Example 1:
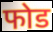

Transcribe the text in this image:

फोड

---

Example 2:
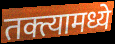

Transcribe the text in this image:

तक्‍त्यामध्ये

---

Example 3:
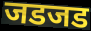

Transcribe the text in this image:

जडजड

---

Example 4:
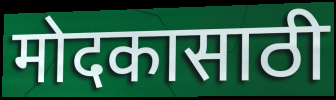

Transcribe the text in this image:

मोदकासाठी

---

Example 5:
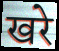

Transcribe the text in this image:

खरे